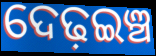
ଦେଢ଼ଇଞ୍ଚ